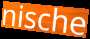
nische